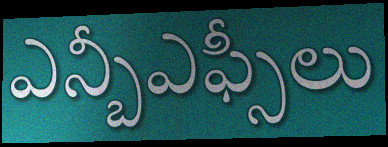
ఎన్బీఎఫ్సీలు